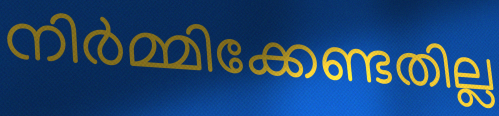
നിർമ്മിക്കേണ്ടതില്ല